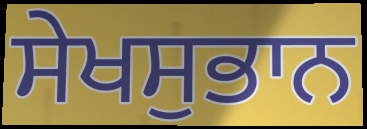
ਸੇਖਸੁਭਾਨ